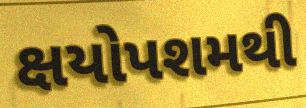
ક્ષયોપશમથી